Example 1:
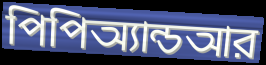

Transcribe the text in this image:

পিপিঅ্যান্ডআর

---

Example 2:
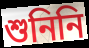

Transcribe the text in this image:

শুনিনি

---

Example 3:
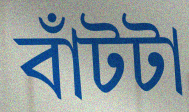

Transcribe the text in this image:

বাঁটটা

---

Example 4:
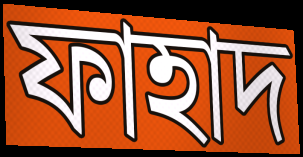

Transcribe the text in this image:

ফাহাদ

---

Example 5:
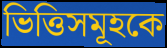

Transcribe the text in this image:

ভিত্তিসমূহকে